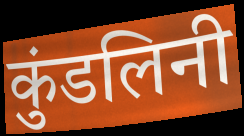
कुंडलिनी